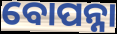
ବୋପନ୍ନା